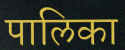
पालिका